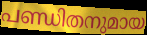
പണ്ഡിതനുമായ